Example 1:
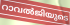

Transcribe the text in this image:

റാവൽജിയുടെ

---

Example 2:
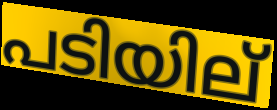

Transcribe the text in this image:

പടിയില്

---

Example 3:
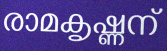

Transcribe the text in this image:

രാമകൃഷ്ണന്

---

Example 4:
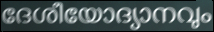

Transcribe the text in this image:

ദേശീയോദ്യാനവും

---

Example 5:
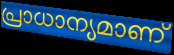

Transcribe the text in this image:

പ്രാധാന്യമാണ്